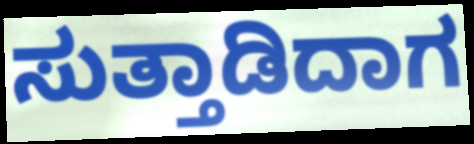
ಸುತ್ತಾಡಿದಾಗ